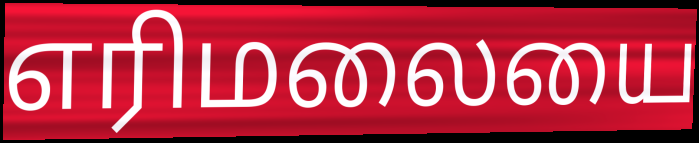
எரிமலையை